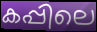
കപ്പിലെ